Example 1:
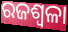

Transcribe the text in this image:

ରଜଶ୍ୱଳା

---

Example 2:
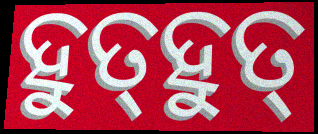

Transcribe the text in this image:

ହୁତ୍‍ହୁତ୍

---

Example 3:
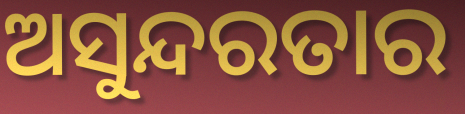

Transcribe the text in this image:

ଅସୁନ୍ଦରତାର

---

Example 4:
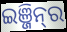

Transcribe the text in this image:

ଇଞ୍ଜିନ୍‌ର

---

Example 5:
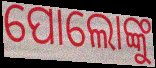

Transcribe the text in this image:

ପୋଲୋଙ୍କୁ